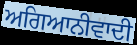
ਅਗਿਆਨੀਵਾਦੀ